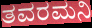
ತವರಮನಿ